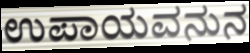
ಉಪಾಯವನುನ